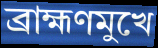
ব্রাহ্মণমুখে